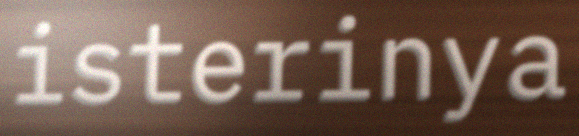
isterinya